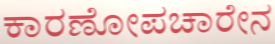
ಕಾರಣೋಪಚಾರೇನ